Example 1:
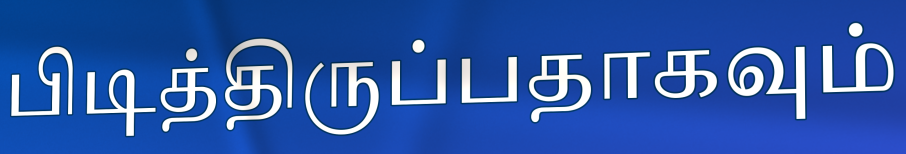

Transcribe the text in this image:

பிடித்திருப்பதாகவும்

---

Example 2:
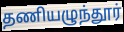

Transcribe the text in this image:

தணியழுந்தூர்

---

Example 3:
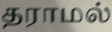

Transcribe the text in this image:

தராமல்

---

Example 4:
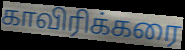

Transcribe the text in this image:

காவிரிக்கரை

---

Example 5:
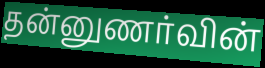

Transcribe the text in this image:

தன்னுணர்வின்